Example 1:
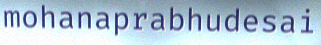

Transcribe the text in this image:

mohanaprabhudesai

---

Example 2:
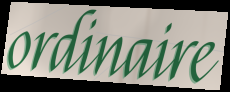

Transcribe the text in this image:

ordinaire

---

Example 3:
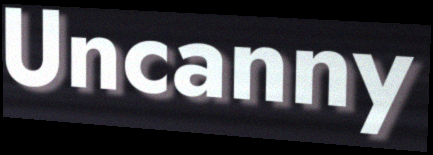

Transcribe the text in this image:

Uncanny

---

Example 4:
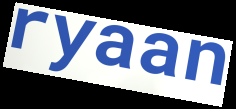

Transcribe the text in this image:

ryaan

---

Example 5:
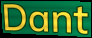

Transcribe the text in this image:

Dant